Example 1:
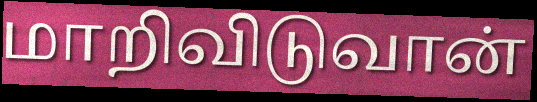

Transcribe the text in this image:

மாறிவிடுவான்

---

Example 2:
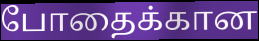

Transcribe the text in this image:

போதைக்கான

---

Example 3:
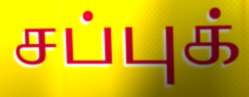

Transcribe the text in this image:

சப்புக்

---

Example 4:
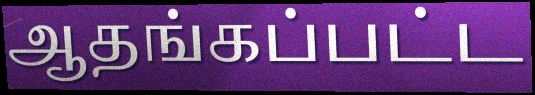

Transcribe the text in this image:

ஆதங்கப்பட்ட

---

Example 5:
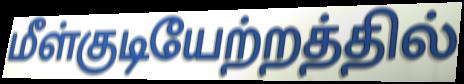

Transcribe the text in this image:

மீள்குடியேற்றத்தில்